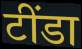
टींडा